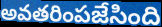
అవతరింపజేసింది